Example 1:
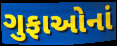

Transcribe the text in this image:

ગુફાઓનાં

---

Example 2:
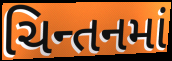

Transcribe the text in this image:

ચિન્તનમાં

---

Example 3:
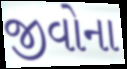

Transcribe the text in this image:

જીવોના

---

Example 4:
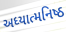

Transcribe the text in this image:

અધ્યાત્મનિષ્ઠ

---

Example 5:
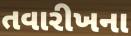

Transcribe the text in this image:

તવારીખના